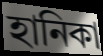
হানিকা